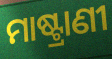
ମାଷ୍ଟ୍ରାଣୀ